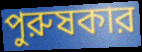
পুরুষকার